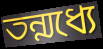
তন্মধ্যে